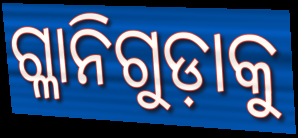
ଗ୍ଳାନିଗୁଡ଼ାକୁ